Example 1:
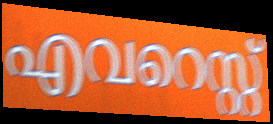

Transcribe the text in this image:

എവറെസ്റ്റ്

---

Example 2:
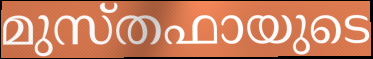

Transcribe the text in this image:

മുസ്തഫായുടെ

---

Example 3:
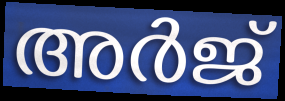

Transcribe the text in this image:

അർജ്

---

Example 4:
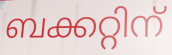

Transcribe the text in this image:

ബക്കറ്റിന്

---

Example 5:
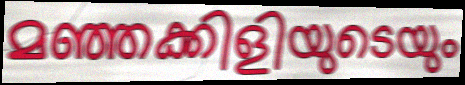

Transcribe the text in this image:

മഞ്ഞക്കിളിയുടെയും